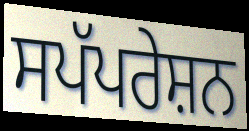
ਸਪੱਪਰੇਸ਼ਨ